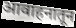
आवाहनातून